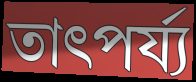
তাৎপৰ্য্য